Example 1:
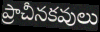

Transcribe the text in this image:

ప్రాచీనకవులు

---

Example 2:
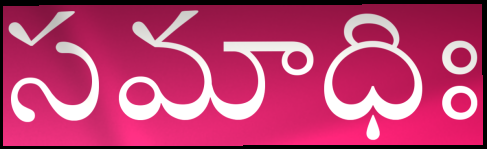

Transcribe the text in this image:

సమాధిః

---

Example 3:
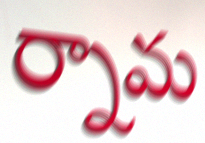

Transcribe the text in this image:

ర్నామ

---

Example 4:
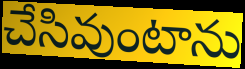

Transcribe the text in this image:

చేసివుంటాను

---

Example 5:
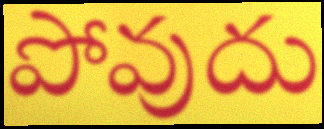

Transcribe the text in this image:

పోవుదు